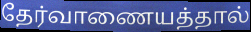
தேர்வாணையத்தால்